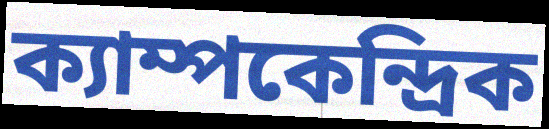
ক্যাম্পকেন্দ্রিক